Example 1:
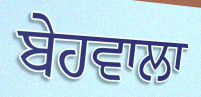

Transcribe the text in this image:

ਬੇਹਵਾਲਾ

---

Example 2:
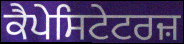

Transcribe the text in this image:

ਕੈਪੇਸਿਟੇਟਰਜ਼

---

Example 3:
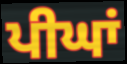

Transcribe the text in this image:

ਪੀਘਾਂ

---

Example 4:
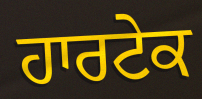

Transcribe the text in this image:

ਹਾਰਟੇਕ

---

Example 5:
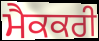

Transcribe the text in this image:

ਮੈਕਕਰੀ